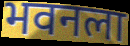
भवनला